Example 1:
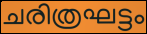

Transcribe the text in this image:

ചരിത്രഘട്ടം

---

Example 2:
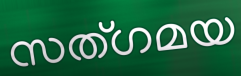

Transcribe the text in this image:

സത്ഗമയ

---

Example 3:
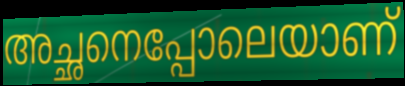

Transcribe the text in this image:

അച്ഛനെപ്പോലെയാണ്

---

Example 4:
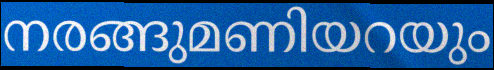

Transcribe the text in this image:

നരങ്ങുമണിയറയും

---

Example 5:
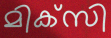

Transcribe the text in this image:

മിക്‌സി